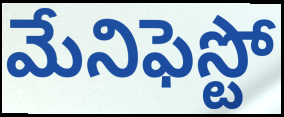
మేనిఫెస్టో